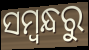
ସମ୍ୱନ୍ଧରୁ